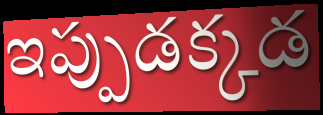
ఇప్పుడక్కడ